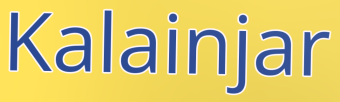
Kalainjar